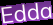
Edda